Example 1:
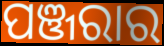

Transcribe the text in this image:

ପଞ୍ଜରାର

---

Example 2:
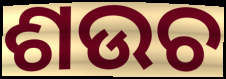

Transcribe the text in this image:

ଶଉଚ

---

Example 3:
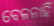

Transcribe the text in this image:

ବେଳନାହିଁ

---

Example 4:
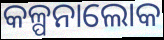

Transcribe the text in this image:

କଳ୍ପନାଲୋକ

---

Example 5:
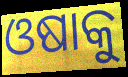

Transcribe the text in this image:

ଓଷାକୁ